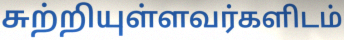
சுற்றியுள்ளவர்களிடம்